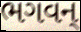
ભગવન્